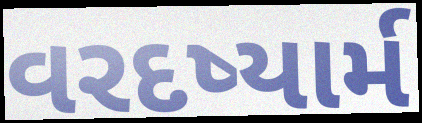
વરદષ્યાર્મ